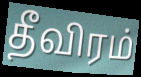
தீவிரம்